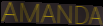
AMANDA